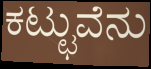
ಕಟ್ಟುವೆನು